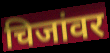
चिजांवर